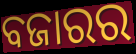
ବଜାରର